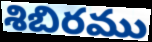
శిబిరము